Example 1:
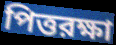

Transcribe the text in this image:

পিত্তরক্ষা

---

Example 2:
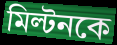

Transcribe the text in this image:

মিল্টনকে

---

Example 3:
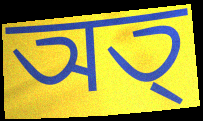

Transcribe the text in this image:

অত্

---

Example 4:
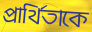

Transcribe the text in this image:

প্রার্থিতাকে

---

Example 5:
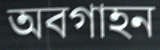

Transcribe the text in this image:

অবগাহন